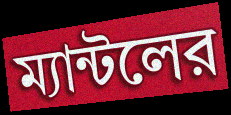
ম্যান্টলের